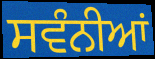
ਸਵੰਨੀਆਂ